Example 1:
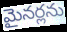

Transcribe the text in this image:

మైనర్లను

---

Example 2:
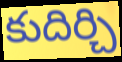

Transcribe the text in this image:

కుదిర్చి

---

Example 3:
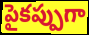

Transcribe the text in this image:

పైకప్పుగా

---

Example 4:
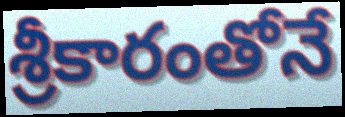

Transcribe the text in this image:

శ్రీకారంతోనే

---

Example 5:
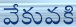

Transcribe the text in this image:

వేకువకి